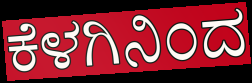
ಕೆಳಗಿನಿಂದ